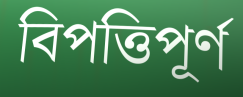
বিপত্তিপূর্ণ